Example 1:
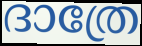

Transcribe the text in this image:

ദാത്രേ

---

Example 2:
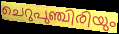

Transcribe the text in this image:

ചെറുപുഞ്ചിരിയും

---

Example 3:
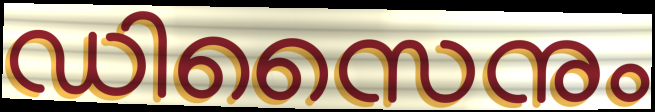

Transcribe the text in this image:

ഡിസൈനും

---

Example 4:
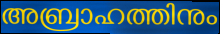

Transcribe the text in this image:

അബ്രാഹത്തിനും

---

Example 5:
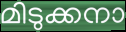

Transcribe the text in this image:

മിടുക്കനാ